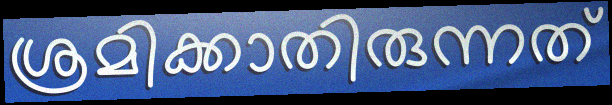
ശ്രമിക്കാതിരുന്നത്